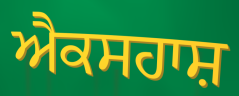
ਐਕਸਹਾਸ਼